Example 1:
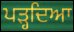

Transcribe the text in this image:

ਪੜ੍ਹਦਿਆ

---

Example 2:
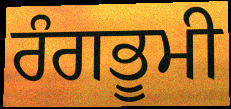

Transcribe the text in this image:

ਰੰਗਭੂਮੀ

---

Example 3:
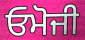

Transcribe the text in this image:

ਓਮੋਜੀ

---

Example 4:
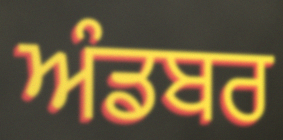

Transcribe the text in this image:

ਅੰਡਬਰ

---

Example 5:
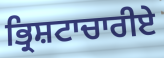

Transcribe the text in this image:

ਭ੍ਰਿਸ਼ਟਾਚਾਰੀਏ